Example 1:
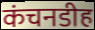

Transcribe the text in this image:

कंचनडीह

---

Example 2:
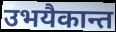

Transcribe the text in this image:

उभयैकान्त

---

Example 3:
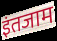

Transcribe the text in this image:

इंतजाम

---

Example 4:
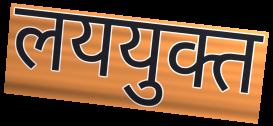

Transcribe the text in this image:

लययुक्त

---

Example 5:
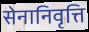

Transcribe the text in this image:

सेनानिवृत्ति